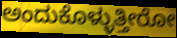
ಅಂದುಕೊಳ್ಳುತ್ತೀರೋ